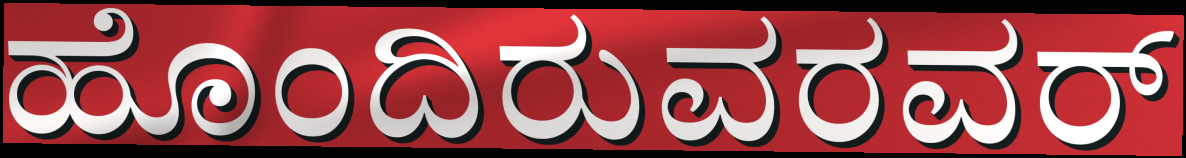
ಹೊಂದಿರುವರವರ್